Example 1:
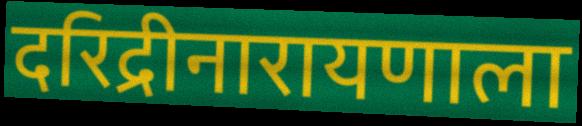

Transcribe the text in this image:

दरिद्रीनारायणाला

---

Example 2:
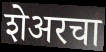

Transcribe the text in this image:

शेअरचा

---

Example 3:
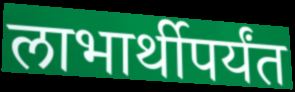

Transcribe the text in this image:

लाभार्थीपर्यंत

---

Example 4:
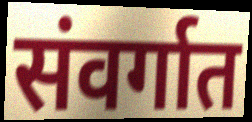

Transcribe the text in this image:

संवर्गात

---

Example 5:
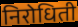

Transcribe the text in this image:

निरोधिती